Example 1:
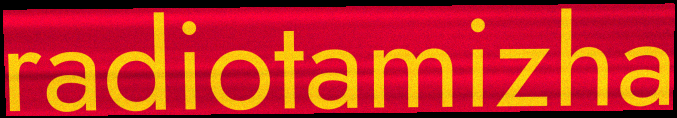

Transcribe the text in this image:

radiotamizha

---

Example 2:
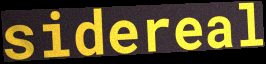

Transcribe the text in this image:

sidereal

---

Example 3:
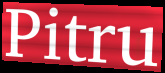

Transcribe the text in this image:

Pitru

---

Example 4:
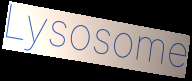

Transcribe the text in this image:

Lysosome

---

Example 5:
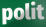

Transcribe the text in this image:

polit